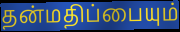
தன்மதிப்பையும்